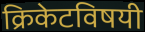
क्रिकेटविषयी